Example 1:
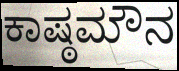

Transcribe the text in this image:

ಕಾಷ್ಠಮೌನ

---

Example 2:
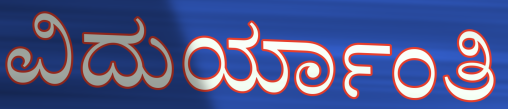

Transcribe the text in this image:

ವಿದುರ್ಯಾಂತಿ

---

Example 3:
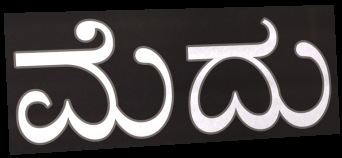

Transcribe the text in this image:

ಮೆದು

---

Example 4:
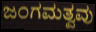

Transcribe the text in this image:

ಜಂಗಮತ್ವವು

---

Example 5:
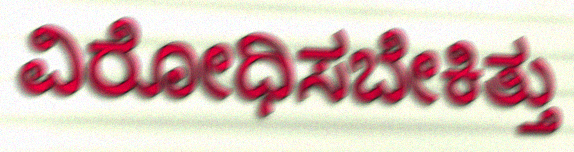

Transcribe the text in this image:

ವಿರೋಧಿಸಬೇಕಿತ್ತು